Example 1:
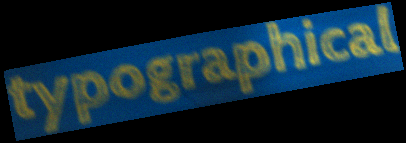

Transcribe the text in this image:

typographical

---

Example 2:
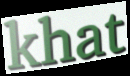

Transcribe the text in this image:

khat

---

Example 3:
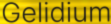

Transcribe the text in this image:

Gelidium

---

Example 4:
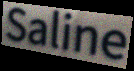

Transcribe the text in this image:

Saline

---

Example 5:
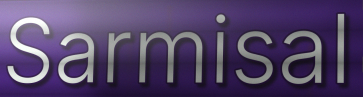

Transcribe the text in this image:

Sarmisal